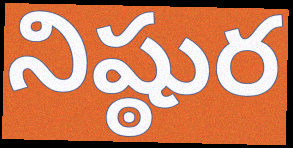
నిష్ఠుర